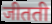
जीतती